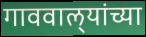
गाववाल्यांच्या